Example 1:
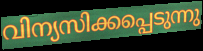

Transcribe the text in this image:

വിന്യസിക്കപ്പെടുന്നു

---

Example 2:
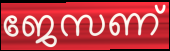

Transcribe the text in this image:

ജേസണ്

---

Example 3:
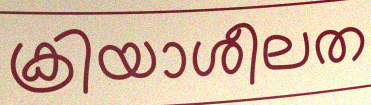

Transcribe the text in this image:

ക്രിയാശീലത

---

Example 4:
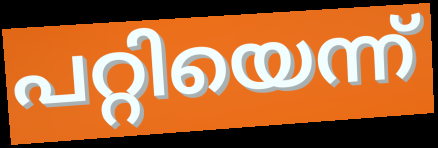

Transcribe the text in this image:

പറ്റിയെന്ന്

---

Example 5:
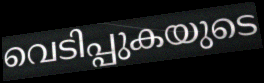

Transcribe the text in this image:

വെടിപ്പുകയുടെ